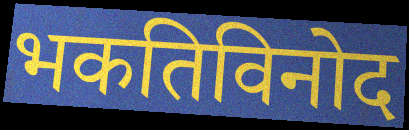
भकतिविनोद